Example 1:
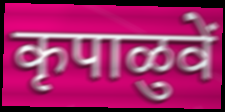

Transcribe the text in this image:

कृपाळुवें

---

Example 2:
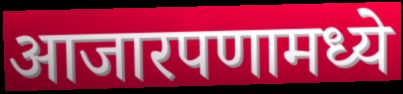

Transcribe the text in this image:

आजारपणामध्ये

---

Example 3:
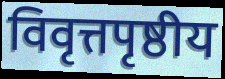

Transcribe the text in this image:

विवृत्तपृष्ठीय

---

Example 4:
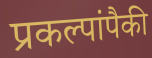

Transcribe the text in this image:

प्रकल्पांपैकी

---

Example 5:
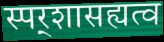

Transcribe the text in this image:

स्पर्शासह्यत्व